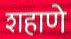
शहाणे